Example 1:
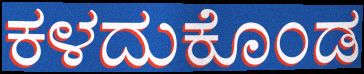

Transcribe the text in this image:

ಕಳದುಕೊಂಡ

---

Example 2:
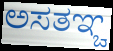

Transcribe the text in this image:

ಅಸತಞ್ಚ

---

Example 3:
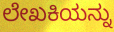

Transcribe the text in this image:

ಲೇಖಕಿಯನ್ನು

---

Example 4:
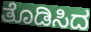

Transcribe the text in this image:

ತೊಡಿಸಿದ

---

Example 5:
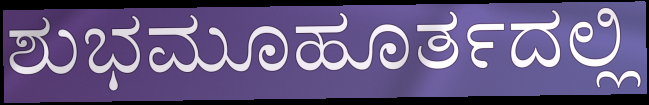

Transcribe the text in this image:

ಶುಭಮೂಹೂರ್ತದಲ್ಲಿ